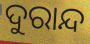
ଦୁରାନ୍ଦ